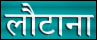
लौटाना